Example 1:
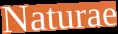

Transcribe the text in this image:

Naturae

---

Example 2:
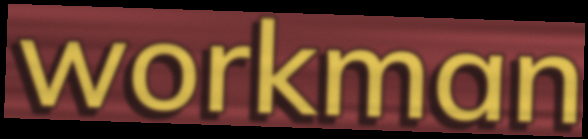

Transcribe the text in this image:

workman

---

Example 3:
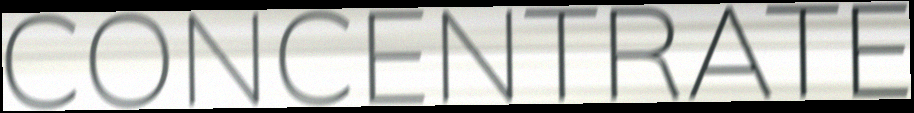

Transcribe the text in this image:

CONCENTRATE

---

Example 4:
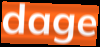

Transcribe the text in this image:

dage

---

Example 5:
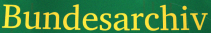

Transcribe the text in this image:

Bundesarchiv